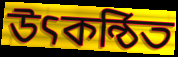
উৎকন্ঠিত